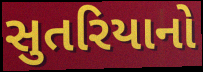
સુતરિયાનો